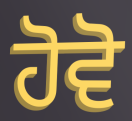
ਹੋਵੋ